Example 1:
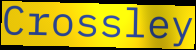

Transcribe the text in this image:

Crossley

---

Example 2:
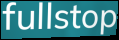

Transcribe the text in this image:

fullstop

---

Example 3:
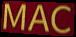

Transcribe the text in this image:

MAC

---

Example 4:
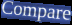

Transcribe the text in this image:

Compare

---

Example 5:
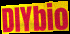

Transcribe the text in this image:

DIYbio